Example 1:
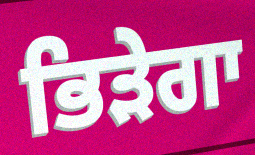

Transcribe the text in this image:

ਭਿੜੇਗਾ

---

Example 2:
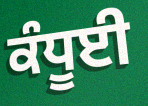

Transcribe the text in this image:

ਕੰਧੂਈ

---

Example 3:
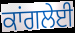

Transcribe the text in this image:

ਕਾਂਗਲੇਈ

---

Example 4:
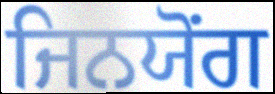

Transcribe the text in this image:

ਜਿਨਯੋਂਗ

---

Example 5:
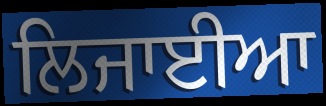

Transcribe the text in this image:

ਲਿਜਾਈਆ